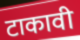
टाकावी